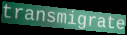
transmigrate